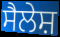
ਸੈਲੇਸ਼